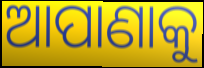
ଆପାଣାକୁ